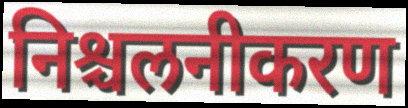
निश्चलनीकरण